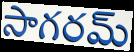
సాగరమ్